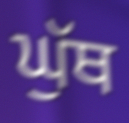
ਘੁੱਥ